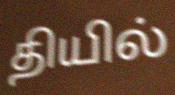
தியில்